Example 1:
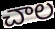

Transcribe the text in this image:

చాల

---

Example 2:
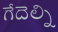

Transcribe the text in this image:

గేదెల్ని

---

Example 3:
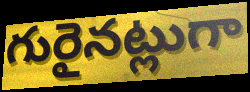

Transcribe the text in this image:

గురైనట్లుగా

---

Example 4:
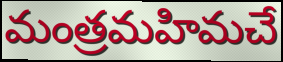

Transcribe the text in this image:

మంత్రమహిమచే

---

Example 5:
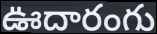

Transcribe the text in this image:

ఊదారంగు